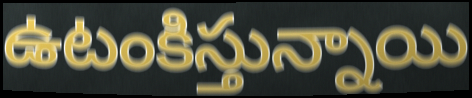
ఉటంకిస్తున్నాయి